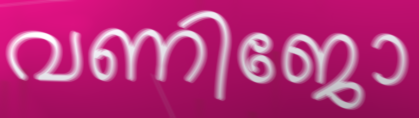
വണിജോ